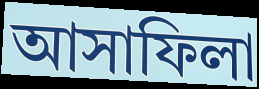
আসাফিলা